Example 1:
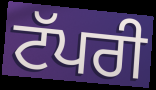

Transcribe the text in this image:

ਟੱਪਰੀ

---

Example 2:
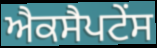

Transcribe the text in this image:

ਐਕਸੈਪਟੇਂਸ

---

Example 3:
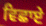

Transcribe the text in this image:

ਵਿਛਾਏ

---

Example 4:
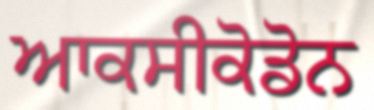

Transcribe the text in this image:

ਆਕਸੀਕੋਡੋਨ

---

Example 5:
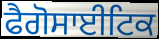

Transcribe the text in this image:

ਫੈਗੋਸਾਈਟਿਕ